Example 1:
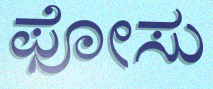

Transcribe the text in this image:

ಫೋಸು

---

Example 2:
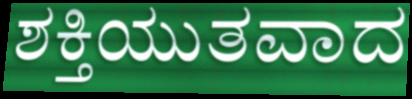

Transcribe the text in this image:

ಶಕ್ತಿಯುತವಾದ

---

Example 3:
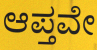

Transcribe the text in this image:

ಆಪ್ತವೇ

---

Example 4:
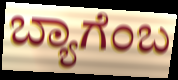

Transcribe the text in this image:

ಬ್ಯಾಗೆಂಬ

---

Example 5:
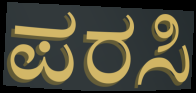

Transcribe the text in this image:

ಪರಸಿ